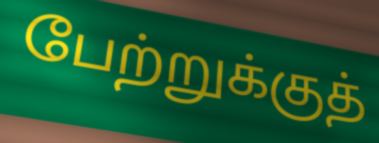
பேற்றுக்குத்